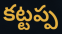
కట్టప్ప